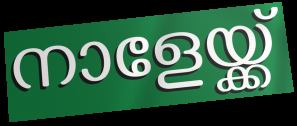
നാളേയ്ക്ക്